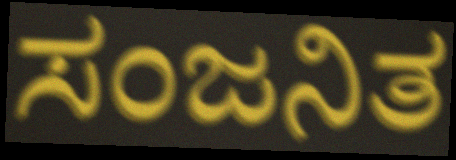
ಸಂಜನಿತ